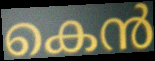
കെൻ